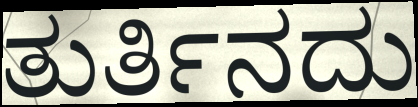
ತುರ್ತಿನದು